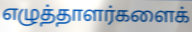
எழுத்தாளர்களைக்